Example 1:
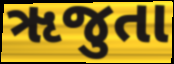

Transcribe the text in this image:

ૠજુતા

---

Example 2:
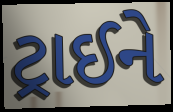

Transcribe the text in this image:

ટ્રાઈને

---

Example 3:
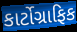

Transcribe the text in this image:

કાર્ટોગ્રાફિક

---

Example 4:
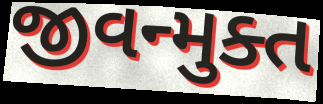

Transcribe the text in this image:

જીવન્મુક્ત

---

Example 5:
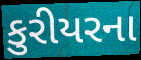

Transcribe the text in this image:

કુરીયરના